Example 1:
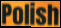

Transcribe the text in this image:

Polish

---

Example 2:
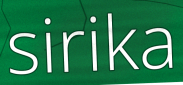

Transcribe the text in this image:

sirika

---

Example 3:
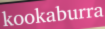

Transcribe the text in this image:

kookaburra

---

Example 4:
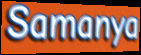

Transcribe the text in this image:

Samanya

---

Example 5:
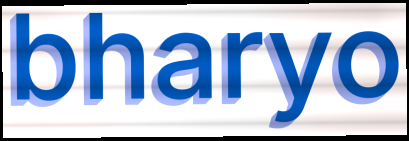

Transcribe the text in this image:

bharyo